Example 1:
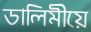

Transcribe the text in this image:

ডালিমীয়ে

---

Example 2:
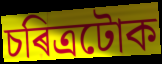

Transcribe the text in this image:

চৰিত্ৰটোক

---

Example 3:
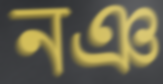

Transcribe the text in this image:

নঞ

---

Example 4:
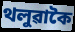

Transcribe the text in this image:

থলুৱাকৈ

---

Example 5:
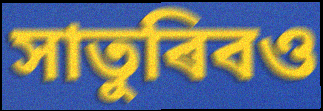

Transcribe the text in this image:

সাতুৰিবও